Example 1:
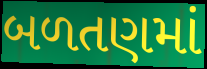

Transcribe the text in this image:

બળતણમાં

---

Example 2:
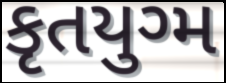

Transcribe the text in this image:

કૃતયુગ્મ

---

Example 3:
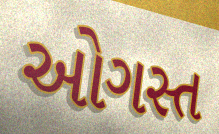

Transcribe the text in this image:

ઓગસ્ત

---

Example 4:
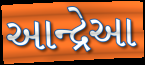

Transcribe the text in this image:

આન્દ્રેઆ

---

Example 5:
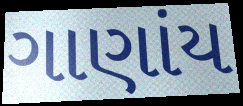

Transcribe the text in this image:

ગાણાંય